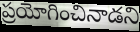
ప్రయోగించినాడని